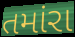
તમાંરા